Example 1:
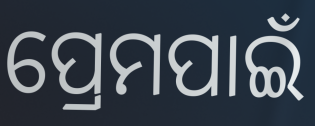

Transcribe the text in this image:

ପ୍ରେମପାଇଁ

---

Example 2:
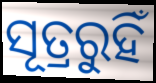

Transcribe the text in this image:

ସୂତ୍ରରୁହିଁ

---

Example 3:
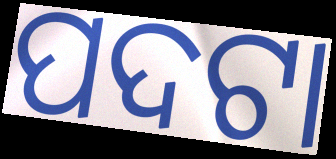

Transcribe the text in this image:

ପଦଟା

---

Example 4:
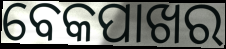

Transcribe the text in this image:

ବେକପାଖର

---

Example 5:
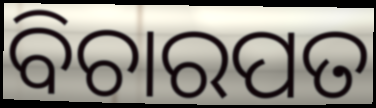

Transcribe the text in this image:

ବିଚାରପତ